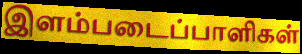
இளம்படைப்பாளிகள்